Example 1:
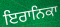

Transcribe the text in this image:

ਇਰਾਨਿਕਾ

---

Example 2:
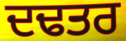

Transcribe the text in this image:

ਦਢਤਰ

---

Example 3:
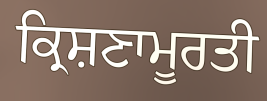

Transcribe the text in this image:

ਕ੍ਰਿਸ਼ਣਾਮੂਰਤੀ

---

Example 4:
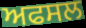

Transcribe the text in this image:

ਅਫਸਲ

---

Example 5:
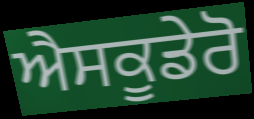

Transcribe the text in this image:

ਐਸਕੂਡੇਰੋ